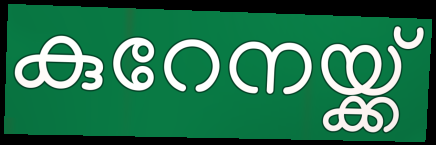
കുറേനയ്ക്ക്